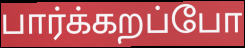
பார்க்கறப்போ